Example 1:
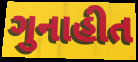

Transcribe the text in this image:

ગુનાહીત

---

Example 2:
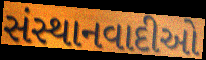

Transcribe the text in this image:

સંસ્થાનવાદીઓ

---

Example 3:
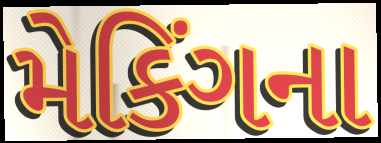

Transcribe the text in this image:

મેકિંગના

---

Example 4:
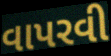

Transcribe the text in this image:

વાપરવી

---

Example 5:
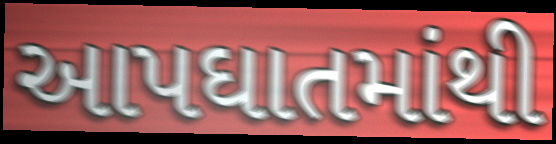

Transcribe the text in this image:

આપઘાતમાંથી